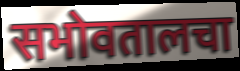
सभोवतालचा